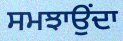
ਸਮਝਾਉਂਦਾ